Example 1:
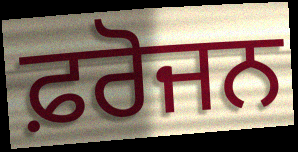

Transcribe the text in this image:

ਫ਼ਰੋਜਨ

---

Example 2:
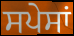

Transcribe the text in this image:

ਸਪੇਸਾਂ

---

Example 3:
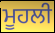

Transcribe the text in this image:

ਮੂਹਲੀ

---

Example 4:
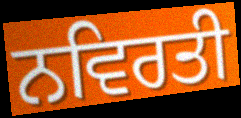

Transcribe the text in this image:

ਨਵਿਰਤੀ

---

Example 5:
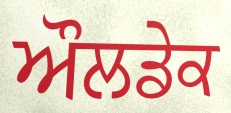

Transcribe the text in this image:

ਔਲਡੇਕ